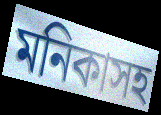
মনিকাসহ